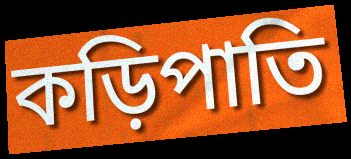
কড়িপাতি